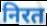
निरत